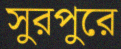
সুরপুরে